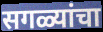
सगळ्यांचा